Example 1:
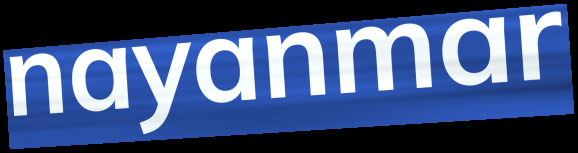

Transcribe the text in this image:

nayanmar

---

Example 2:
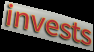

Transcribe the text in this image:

invests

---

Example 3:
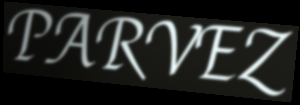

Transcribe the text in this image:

PARVEZ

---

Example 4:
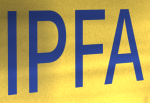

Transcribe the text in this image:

IPFA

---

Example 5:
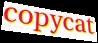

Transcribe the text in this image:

copycat